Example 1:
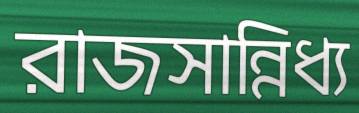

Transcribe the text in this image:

রাজসান্নিধ্য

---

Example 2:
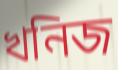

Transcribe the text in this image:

খনিজ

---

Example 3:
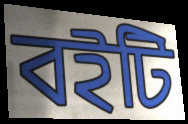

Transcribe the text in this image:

বইটি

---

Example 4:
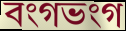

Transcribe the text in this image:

বংগভংগ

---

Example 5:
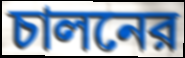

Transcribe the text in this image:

চালনের